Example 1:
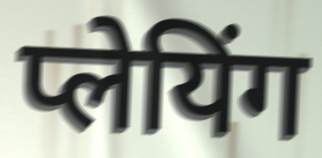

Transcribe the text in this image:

प्लेयिंग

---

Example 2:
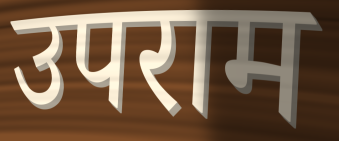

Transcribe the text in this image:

उपराम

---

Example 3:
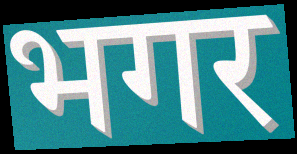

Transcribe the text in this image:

भगर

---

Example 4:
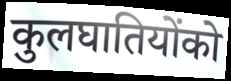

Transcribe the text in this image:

कुलघातियोंको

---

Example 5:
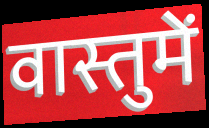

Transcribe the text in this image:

वास्तुमें